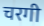
चरगी